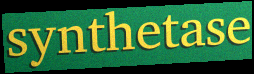
synthetase